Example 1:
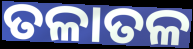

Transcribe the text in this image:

ତଳାତଳ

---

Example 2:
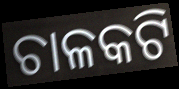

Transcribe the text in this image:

ଚାଳକଟି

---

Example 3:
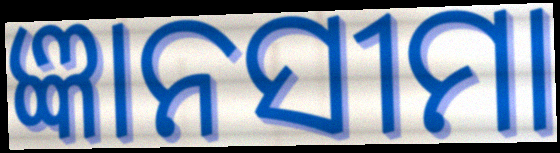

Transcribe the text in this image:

ଜ୍ଞାନସୀମା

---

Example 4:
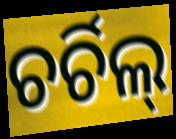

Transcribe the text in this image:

ଚର୍ଚିଲ୍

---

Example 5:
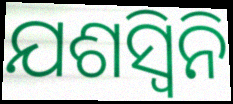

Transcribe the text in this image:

ଯଶସ୍ୱିନି